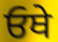
ਓਥੇ